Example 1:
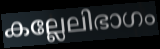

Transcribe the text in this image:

കല്ലേലിഭാഗം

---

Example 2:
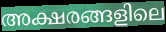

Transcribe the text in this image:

അക്ഷരങ്ങളിലെ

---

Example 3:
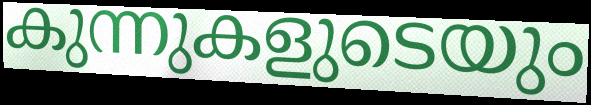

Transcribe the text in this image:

കുന്നുകളുടെയും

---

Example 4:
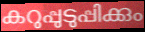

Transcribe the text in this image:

കറുപ്പുടുപ്പിക്കും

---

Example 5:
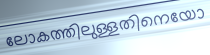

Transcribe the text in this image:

ലോകത്തിലുള്ളതിനെയോ